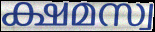
ക്ഷമസ്വ